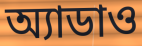
অ্যাডাও